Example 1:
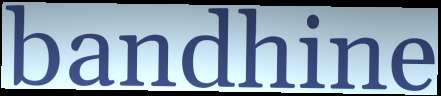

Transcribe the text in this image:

bandhine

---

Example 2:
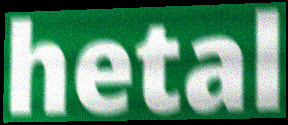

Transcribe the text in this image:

hetal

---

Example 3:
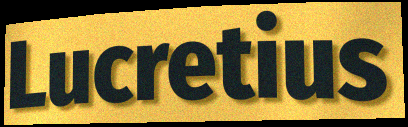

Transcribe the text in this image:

Lucretius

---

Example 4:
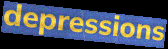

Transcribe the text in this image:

depressions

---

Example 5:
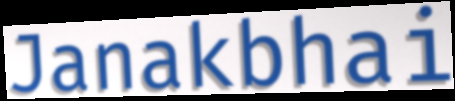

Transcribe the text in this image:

Janakbhai